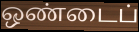
ஒண்டைப்